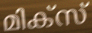
മിക്‌സ്